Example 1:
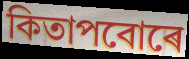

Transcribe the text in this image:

কিতাপবোৰে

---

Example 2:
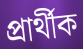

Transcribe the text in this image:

প্ৰাৰ্থীক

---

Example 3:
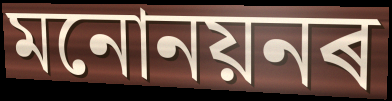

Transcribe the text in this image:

মনোনয়নৰ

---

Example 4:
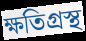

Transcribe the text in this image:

ক্ষতিগ্ৰস্থ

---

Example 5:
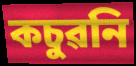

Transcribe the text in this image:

কচুৱনি